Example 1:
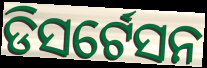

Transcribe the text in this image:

ଡିସର୍ଟେସନ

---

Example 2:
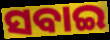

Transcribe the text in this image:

ସବାଇ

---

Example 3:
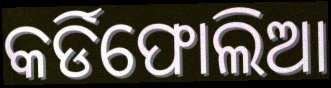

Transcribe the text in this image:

କର୍ଡିଫୋଲିଆ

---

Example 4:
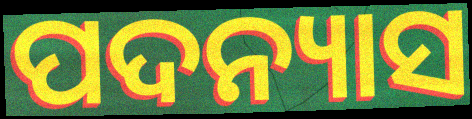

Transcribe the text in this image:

ପଦନ୍ୟାସ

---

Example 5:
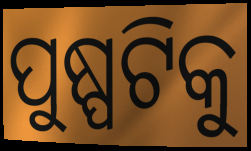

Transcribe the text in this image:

ପୁଷ୍ପଟିକୁ